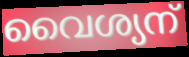
വൈശ്യന്